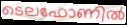
ടെലഫോണിൽ